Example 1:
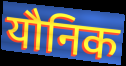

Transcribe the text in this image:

यौनिक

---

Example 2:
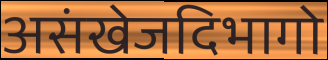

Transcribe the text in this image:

असंखेजदिभागो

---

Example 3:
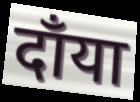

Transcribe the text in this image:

दाँया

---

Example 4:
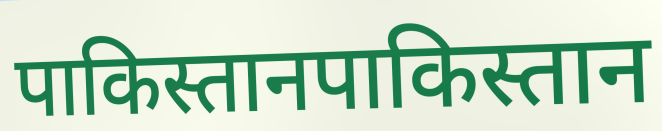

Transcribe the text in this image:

पाकिस्तानपाकिस्तान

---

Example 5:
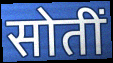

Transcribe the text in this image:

सोतीं